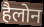
हैलोन